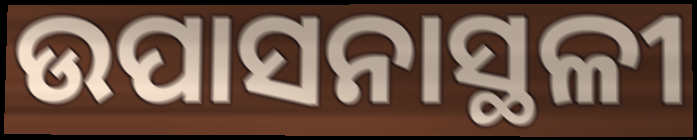
ଉପାସନାସ୍ଥଳୀ